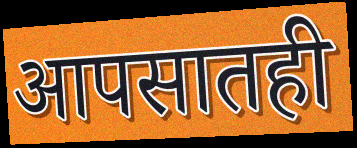
आपसातही